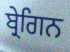
ਬ੍ਰੇਗਿਨ